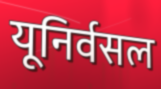
यूनिर्वसल